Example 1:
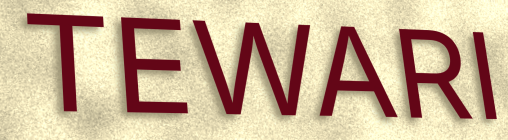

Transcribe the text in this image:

TEWARI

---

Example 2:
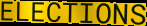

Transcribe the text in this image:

ELECTIONS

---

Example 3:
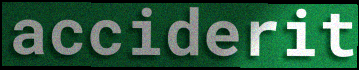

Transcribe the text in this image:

acciderit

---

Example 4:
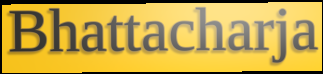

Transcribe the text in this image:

Bhattacharja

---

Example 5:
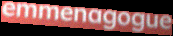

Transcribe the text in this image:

emmenagogue